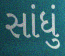
સાંધું